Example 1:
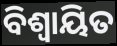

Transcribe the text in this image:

ବିଶ୍ବାୟିତ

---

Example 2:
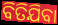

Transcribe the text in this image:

ବିତିଯିବା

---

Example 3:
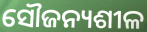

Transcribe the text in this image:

ସୌଜନ୍ୟଶୀଳ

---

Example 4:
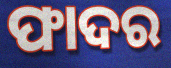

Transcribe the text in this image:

ଫାଦର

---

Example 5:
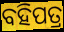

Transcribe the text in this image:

ବହିପତ୍ର